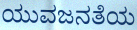
ಯುವಜನತೆಯ